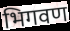
भिगवण